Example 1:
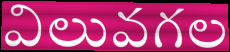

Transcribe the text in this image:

విలువగల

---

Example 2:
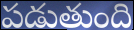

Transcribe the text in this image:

పడుతుంది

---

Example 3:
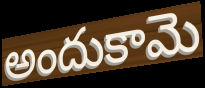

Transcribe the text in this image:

అందుకామె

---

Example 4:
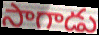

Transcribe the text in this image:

సాగాడు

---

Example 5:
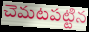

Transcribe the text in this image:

చెమటపట్టిన